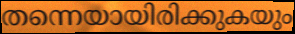
തന്നെയായിരിക്കുകയും